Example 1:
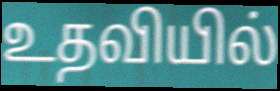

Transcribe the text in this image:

உதவியில்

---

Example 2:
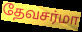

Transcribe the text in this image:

தேவசர்மா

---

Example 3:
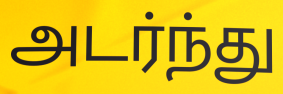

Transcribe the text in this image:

அடர்ந்து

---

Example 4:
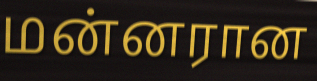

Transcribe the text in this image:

மன்னரான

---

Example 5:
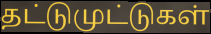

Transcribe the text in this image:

தட்டுமுட்டுகள்